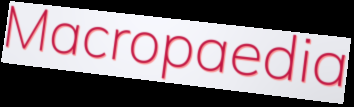
Macropaedia